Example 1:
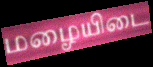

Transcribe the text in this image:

மழையிடை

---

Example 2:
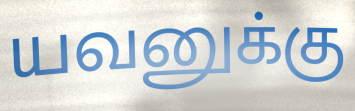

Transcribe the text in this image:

யவனுக்கு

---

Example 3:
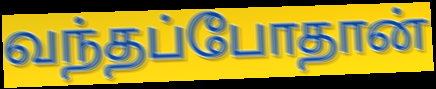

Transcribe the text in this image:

வந்தப்போதான்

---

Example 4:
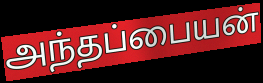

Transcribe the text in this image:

அந்தப்பையன்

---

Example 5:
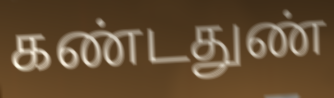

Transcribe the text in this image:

கண்டதுண்